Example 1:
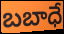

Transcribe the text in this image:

బబాధే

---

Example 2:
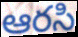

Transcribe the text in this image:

ఆరసి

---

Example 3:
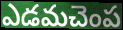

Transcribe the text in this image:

ఎడమచెంప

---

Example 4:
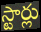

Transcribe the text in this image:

స్టార్లు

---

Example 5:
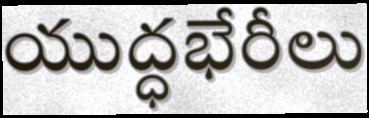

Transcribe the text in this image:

యుద్ధభేరీలు